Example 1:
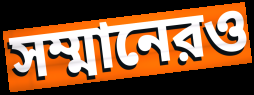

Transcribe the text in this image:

সম্মানেরও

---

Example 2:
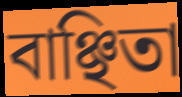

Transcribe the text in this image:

বাঞ্ছিতা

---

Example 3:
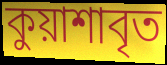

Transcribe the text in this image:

কুয়াশাবৃত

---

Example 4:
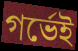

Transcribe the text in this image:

গর্ভেই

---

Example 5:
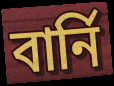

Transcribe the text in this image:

বার্নি